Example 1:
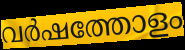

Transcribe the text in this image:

വർഷത്തോളം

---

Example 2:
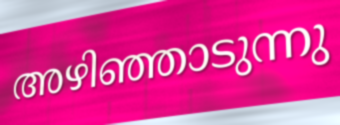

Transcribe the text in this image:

അഴിഞ്ഞാടുന്നു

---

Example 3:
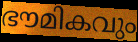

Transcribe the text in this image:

ഭൗമികവും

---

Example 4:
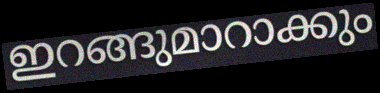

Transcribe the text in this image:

ഇറങ്ങുമാറാക്കും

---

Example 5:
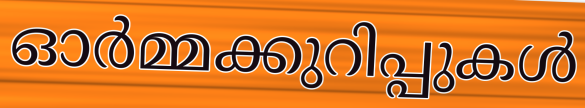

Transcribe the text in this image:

ഓർമ്മക്കുറിപ്പുകൾ